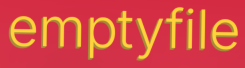
emptyfile